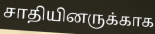
சாதியினருக்காக